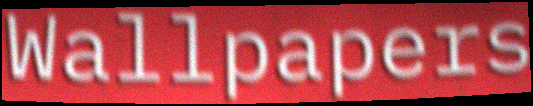
Wallpapers